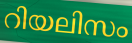
റിയലിസം